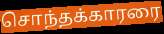
சொந்தக்காரரை